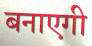
बनाएगी